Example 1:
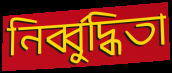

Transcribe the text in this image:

নির্ব্বুদ্ধিতা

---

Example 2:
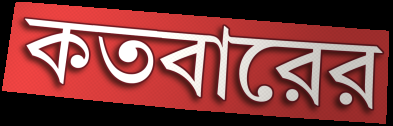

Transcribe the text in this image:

কতবারের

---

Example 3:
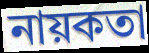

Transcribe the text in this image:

নায়কতা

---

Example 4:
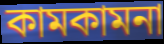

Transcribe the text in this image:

কামকামনা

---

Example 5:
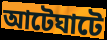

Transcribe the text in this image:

আটেঘাটে